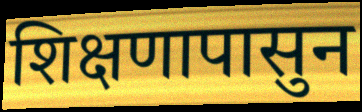
शिक्षणापासुन